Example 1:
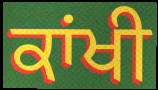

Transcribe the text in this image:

ਕਾਂਖੀ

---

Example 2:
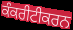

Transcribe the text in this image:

ਕੰਕਰੀਟੀਕਰਨ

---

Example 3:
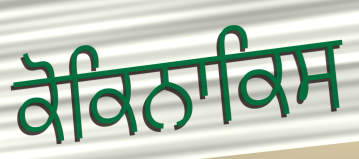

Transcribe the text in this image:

ਕੋਕਿਨਾਕਿਸ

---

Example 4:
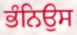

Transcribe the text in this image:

ਭੰਨਿਉਸ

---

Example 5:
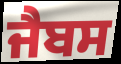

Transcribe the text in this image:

ਜੈਬਸ